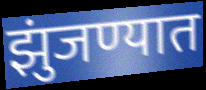
झुंजण्यात